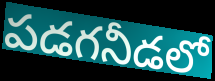
పడగనీడలో